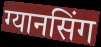
ग्यानसिंग